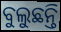
ବୁଲୁଛନ୍ତି